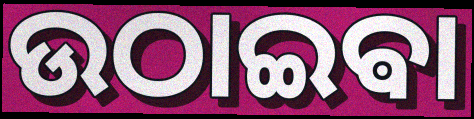
ଉଠାଇଵା